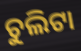
ଚୁଲିଟା